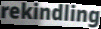
rekindling